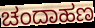
ಚಂದಾಹಣ